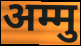
अम्मु